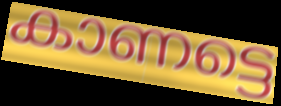
കാണട്ടെ